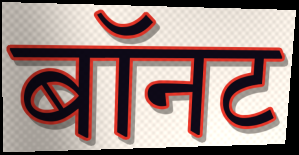
बॉनट